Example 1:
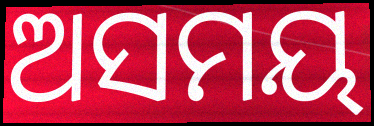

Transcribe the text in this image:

ଅସମୟ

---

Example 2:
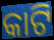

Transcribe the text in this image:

କାଟି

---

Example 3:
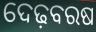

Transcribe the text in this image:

ଦେଢ଼ବରଷ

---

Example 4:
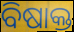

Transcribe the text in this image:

ବିଷାକ୍ତ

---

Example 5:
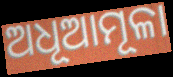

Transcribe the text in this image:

ଅଧୂଆମୂଳା